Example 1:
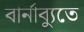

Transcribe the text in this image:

বার্নাব্যুতে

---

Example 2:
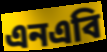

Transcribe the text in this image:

এনএবি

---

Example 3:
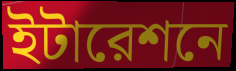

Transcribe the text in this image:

ইটারেশনে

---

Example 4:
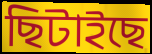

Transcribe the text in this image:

ছিটাইছে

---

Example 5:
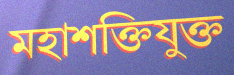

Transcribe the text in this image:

মহাশক্তিযুক্ত